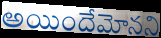
అయిందేమోనని